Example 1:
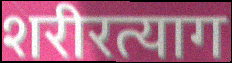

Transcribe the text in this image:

शरीरत्याग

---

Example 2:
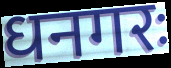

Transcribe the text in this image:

धनगरः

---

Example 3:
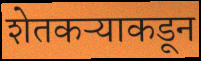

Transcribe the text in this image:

शेतकऱ्याकडून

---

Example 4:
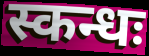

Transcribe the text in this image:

स्कन्धः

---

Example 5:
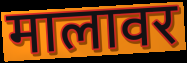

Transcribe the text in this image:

मालावर